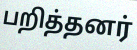
பறித்தனர்